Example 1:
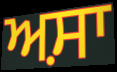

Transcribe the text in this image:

ਅ਼ਸਾ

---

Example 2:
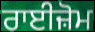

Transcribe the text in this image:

ਰਾਈਜ਼ੋਮ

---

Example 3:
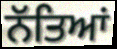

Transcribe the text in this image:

ਨੱਤਿਆਂ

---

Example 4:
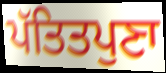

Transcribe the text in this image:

ਪੱਤਿਤਪੁਣਾ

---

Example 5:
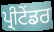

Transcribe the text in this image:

ਪ੍ਰੀਟੇਂਡਰ